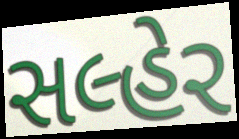
સલ્હેર